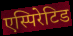
एस्पिरेटिड